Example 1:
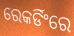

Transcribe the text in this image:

ରେକର୍ଡିଂରେ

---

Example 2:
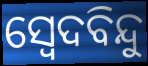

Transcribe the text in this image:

ସ୍ଵେଦବିନ୍ଦୁ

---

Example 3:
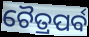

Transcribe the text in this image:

ଚୈତ୍ରପର୍ବ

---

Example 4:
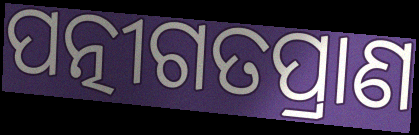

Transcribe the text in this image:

ପତ୍ନୀଗତପ୍ରାଣ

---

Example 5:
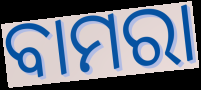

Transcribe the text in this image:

ବାମରା